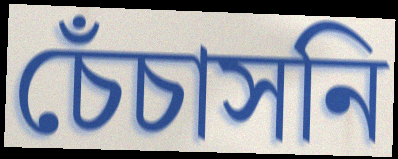
চেঁচাসনি